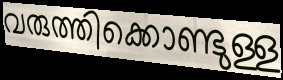
വരുത്തിക്കൊണ്ടുള്ള